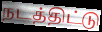
நடத்திட்டு